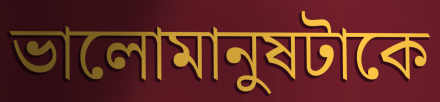
ভালোমানুষটাকে